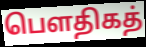
பௌதிகத்